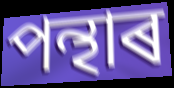
পন্থাৰ